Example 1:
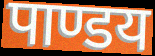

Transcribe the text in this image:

पाण्डय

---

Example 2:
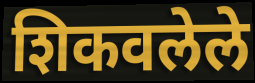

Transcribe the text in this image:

शिकवलेले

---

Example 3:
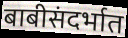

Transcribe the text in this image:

बाबीसंदर्भात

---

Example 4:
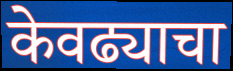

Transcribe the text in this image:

केवढ्याचा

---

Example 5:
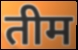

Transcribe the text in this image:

तीम